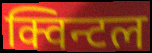
क्विन्टल